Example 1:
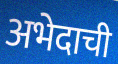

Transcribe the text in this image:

अभेदाची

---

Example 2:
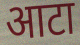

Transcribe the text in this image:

आटा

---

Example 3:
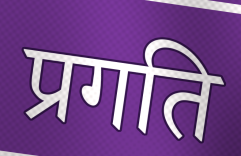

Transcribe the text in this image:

प्रगति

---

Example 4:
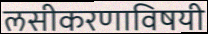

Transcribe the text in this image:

लसीकरणाविषयी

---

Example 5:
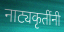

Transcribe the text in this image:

नाट्यकृतींनी